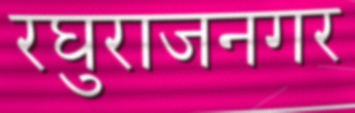
रघुराजनगर